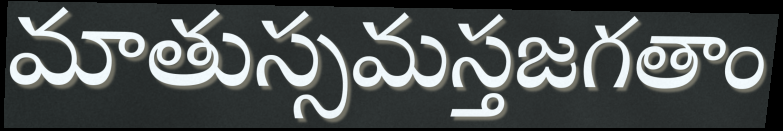
మాతుస్సమస్తజగతాం